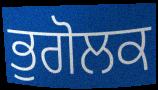
ਭੁਗੋਲਕ